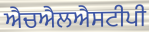
ਐਚਐਲਐਸਟੀਪੀ